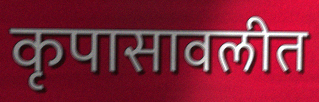
कृपासावलीत